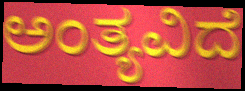
ಅಂತ್ಯವಿದೆ